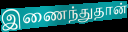
இணைந்துதான்